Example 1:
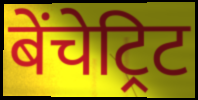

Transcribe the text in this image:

बेंचेट्रिट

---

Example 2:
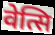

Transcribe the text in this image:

वेत्सि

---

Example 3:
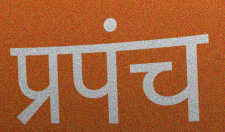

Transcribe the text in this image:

प्रपंच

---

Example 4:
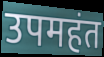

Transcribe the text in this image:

उपमहंत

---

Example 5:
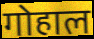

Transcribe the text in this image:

गोहाल